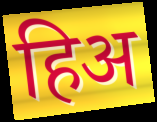
हिअ